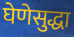
घेणेसुद्धा